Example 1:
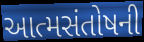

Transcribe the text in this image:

આત્મસંતોષની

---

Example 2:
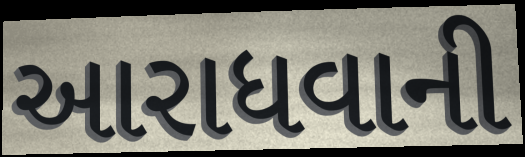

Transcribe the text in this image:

આરાધવાની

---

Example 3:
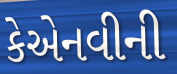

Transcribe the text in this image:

કેએનવીની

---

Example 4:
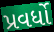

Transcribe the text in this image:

પ્રવર્ધો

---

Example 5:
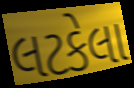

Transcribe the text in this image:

લટકેલા